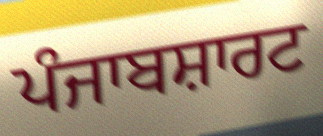
ਪੰਜਾਬਸ਼ਾਰਟ